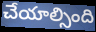
చేయాల్సింది